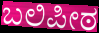
ಬಲಿಪೀಠ